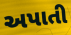
અપાતી